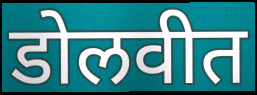
डोलवीत